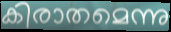
കിരാതമെന്നു